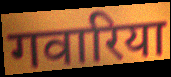
गवारिया